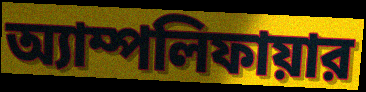
অ্যাম্পলিফায়ার